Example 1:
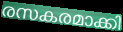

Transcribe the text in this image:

രസകരമാക്കി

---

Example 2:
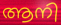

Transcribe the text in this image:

ആനി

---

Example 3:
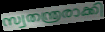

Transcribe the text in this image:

സ്വതന്ത്രരാക്കി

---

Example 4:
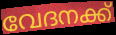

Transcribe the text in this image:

വേദനക്ക്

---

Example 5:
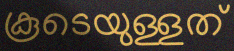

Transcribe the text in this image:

കൂടെയുള്ളത്